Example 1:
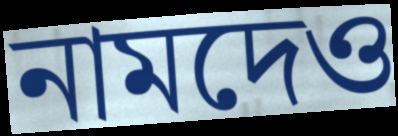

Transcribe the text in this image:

নামদেও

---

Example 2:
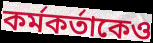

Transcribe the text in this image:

কর্মকর্তাকেও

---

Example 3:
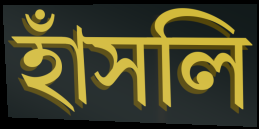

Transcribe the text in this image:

হাঁসলি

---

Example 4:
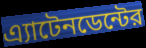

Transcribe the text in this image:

এ্যাটেনডেন্টের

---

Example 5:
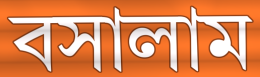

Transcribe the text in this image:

বসালাম